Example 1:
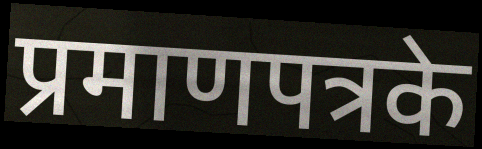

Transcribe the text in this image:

प्रमाणपत्रके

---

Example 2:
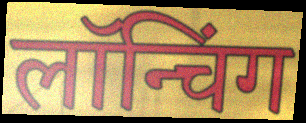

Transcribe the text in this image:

लॉन्चिंग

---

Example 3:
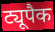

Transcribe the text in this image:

ट्यूपैक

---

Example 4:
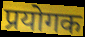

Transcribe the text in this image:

प्रयोगक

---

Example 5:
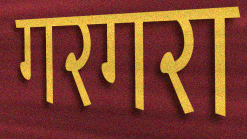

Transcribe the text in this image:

गरगरा